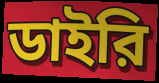
ডাইরি